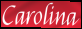
Carolina